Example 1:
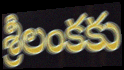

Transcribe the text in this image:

శ్రీలంకకు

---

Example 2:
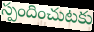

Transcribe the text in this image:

స్పందించుటకు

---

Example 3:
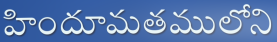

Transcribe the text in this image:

హిందూమతములోని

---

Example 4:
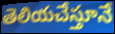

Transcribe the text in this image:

తెలియచేస్తూనే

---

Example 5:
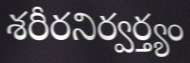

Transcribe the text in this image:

శరీరనిర్వర్త్యం